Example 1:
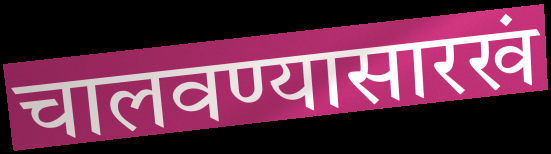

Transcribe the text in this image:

चालवण्यासारखं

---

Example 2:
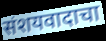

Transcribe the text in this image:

संशयवादाचा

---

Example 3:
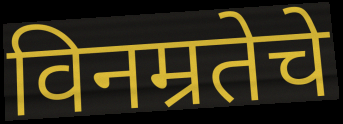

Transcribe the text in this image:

विनम्रतेचे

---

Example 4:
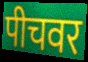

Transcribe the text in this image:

पीचवर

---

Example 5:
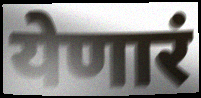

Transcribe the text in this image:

येणारं